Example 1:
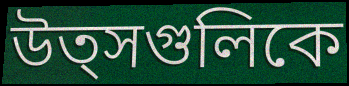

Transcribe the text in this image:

উত্সগুলিকে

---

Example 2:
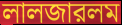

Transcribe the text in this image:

লালজারলম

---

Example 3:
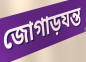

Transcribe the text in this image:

জোগাড়যন্ত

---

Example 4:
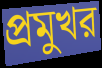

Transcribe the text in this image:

প্রমুখর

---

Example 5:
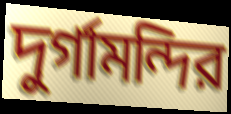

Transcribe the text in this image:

দুর্গামন্দির